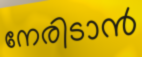
നേരിടാൻ